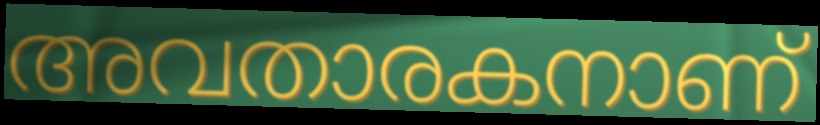
അവതാരകനാണ്